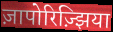
ज़ापोरिज़्झिया